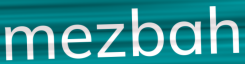
mezbah